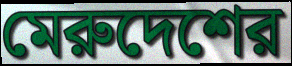
মেরুদেশের